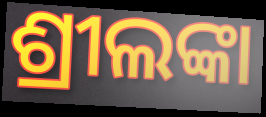
ଶ୍ରୀଲଙ୍କା